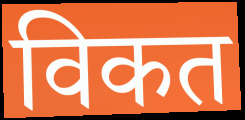
विकत